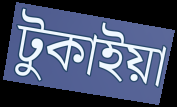
টুকাইয়া